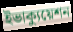
ইভাক্যুয়েশন